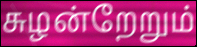
சுழன்றேறும்